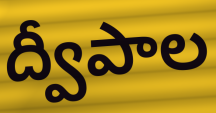
ద్వీపాల